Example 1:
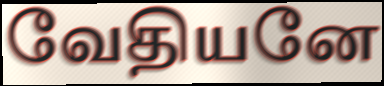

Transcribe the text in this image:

வேதியனே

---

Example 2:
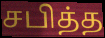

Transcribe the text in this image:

சபித்த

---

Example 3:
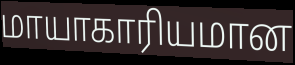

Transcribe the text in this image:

மாயாகாரியமான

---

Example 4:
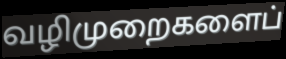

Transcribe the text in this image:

வழிமுறைகளைப்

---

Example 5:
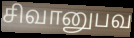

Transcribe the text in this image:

சிவானுபவ